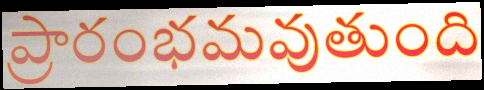
ప్రారంభమవుతుంది